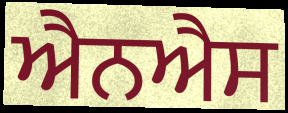
ਐਨਐਸ